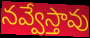
నవ్వేస్తావు